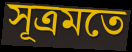
সূত্রমতে